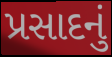
પ્રસાદનું